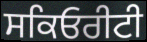
ਸਕਿਓਰੀਟੀ